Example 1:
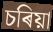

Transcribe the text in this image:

চৰিয়া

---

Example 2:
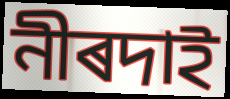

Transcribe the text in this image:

নীৰদাই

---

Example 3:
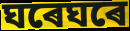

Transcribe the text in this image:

ঘৰেঘৰে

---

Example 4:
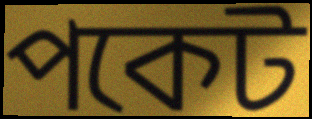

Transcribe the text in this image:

পকেট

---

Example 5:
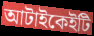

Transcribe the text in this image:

আটাইকেইটি